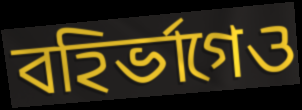
বহির্ভাগেও